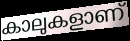
കാലുകളാണ്